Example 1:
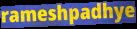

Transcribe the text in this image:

rameshpadhye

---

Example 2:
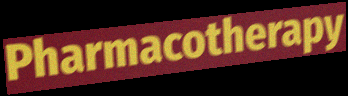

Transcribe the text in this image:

Pharmacotherapy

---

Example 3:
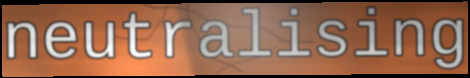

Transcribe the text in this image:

neutralising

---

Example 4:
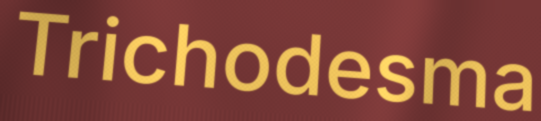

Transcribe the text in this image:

Trichodesma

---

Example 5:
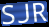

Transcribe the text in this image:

SJR